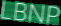
LBNP